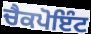
ਚੈਕਪੋਇੰਟ